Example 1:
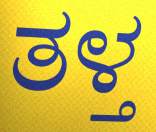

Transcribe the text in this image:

ತಳ್ತ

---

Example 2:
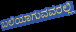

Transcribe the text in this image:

ಬಲಿಯಾಗುವವರಲ್ಲಿ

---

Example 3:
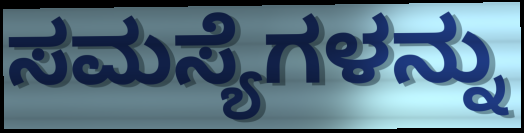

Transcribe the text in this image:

ಸಮಸ್ಯೆಗಳನ್ನು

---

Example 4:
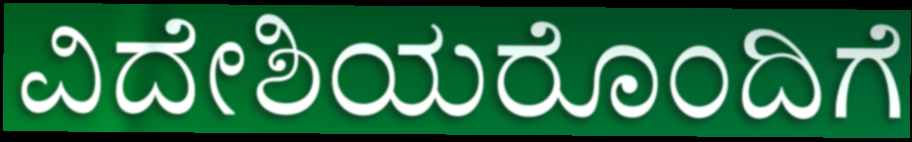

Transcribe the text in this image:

ವಿದೇಶಿಯರೊಂದಿಗೆ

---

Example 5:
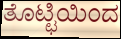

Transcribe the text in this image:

ತೊಟ್ಟಿಯಿಂದ